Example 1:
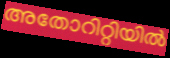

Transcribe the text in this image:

അതോറിറ്റിയിൽ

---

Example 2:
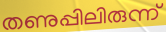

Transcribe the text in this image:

തണുപ്പിലിരുന്ന്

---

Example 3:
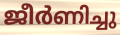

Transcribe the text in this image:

ജീർണിച്ചു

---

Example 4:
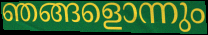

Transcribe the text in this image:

ഞങ്ങളൊന്നും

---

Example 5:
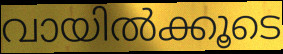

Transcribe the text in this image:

വായിൽക്കൂടെ